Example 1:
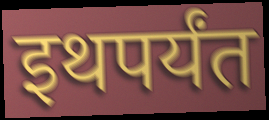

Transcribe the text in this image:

इथपर्यंत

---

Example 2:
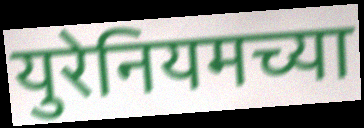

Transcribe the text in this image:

युरेनियमच्या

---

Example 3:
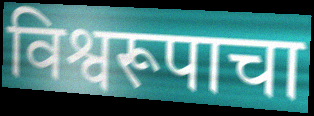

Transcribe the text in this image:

विश्वरूपाचा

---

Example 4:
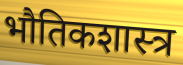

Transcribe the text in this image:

भौतिकशास्त्र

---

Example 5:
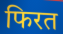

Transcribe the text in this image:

फिरत